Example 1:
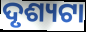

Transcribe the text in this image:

ଦୃଶ୍ୟଟା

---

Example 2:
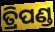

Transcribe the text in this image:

ତ୍ରିପଣ୍ଡ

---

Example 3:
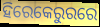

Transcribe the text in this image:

ହିରେକେରୁରରେ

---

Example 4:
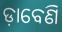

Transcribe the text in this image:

ଡ଼ାବେଣି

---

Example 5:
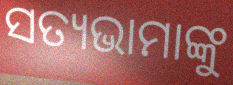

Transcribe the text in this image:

ସତ୍ୟଭାମାଙ୍କୁ